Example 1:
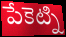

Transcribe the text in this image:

పేకెట్ని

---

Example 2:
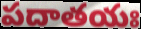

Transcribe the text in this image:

పదాతయః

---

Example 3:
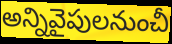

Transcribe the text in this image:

అన్నివైపులనుంచీ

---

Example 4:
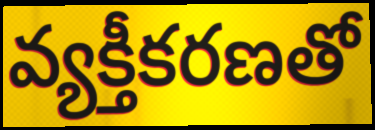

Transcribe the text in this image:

వ్యక్తీకరణతో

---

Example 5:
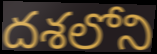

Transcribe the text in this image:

దశలోని